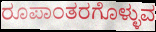
ರೂಪಾಂತರಗೊಳ್ಳುವ